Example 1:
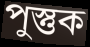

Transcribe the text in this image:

পুস্তুক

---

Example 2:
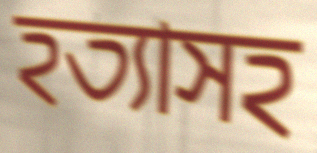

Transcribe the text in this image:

হত্যাসহ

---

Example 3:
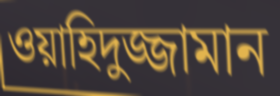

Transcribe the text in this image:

ওয়াহিদুজ্জামান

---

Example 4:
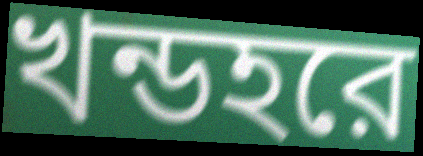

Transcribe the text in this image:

খন্ডহরে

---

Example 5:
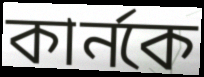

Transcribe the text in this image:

কার্নকে